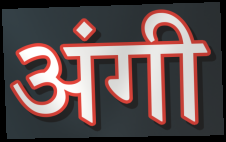
अंगी